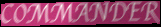
COMMANDER